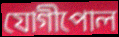
যোগীপোল